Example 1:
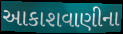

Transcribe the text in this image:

આકાશવાણીના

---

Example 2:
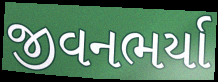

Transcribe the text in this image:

જીવનભર્યા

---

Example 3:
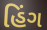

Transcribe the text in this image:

હિંગ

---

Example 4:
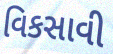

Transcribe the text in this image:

વિકસાવી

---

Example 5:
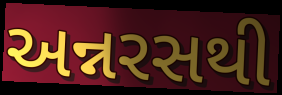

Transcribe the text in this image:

અન્નરસથી